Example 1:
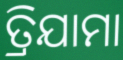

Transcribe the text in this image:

ତ୍ରିଯାମା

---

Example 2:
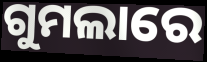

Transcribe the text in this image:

ଗୁମଲାରେ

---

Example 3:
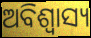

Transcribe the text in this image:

ଅବିଶ୍ଵାସ୍ୟ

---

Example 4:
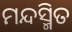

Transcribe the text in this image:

ମନ୍ଦସ୍ମିତ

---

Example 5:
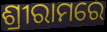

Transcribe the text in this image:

ଶ୍ରୀରାମରେ